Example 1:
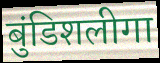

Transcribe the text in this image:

बुंडिशलीगा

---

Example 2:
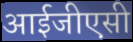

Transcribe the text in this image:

आईजीएसी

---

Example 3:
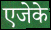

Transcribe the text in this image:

एजेके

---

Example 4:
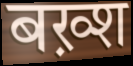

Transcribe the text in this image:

बख़्श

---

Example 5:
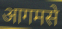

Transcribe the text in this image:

आगमसे